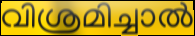
വിശ്രമിച്ചാൽ